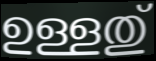
ഉള്ളതു്